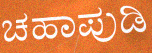
ಚಹಾಪುಡಿ